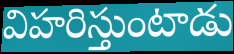
విహరిస్తుంటాడు